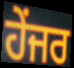
ਹੇਂਜਰ